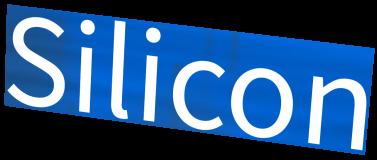
Silicon